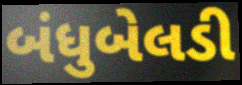
બંધુબેલડી